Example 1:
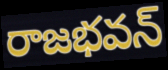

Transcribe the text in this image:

రాజభవన్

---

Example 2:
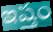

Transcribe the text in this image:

ఇష్తం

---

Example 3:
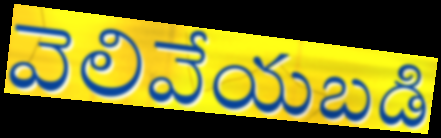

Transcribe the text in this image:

వెలివేయబడి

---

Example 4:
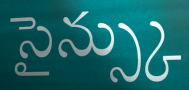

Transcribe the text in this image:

సైన్స్కు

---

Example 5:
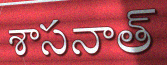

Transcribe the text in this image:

శాసనాత్